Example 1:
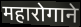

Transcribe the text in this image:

महारोगाने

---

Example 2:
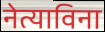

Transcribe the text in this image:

नेत्याविना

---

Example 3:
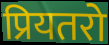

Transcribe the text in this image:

प्रियतरो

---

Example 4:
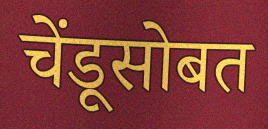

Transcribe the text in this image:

चेंडूसोबत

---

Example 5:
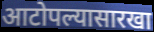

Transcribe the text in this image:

आटोपल्यासारखा